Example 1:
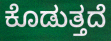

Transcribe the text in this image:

ಕೊಡುತ್ತದೆ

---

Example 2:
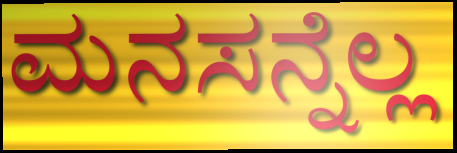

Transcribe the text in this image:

ಮನಸನ್ನೆಲ್ಲ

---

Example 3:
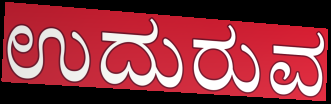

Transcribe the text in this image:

ಉದುರುವ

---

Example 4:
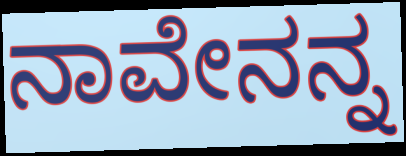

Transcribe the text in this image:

ನಾವೇನನ್ನ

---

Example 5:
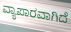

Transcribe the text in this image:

ವ್ಯಾಪಾರವಾಗಿದೆ